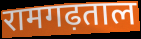
रामगढ़ताल